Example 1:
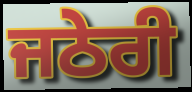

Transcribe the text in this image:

ਜਠੇਰੀ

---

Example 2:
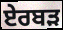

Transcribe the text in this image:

ਏਰਬੜ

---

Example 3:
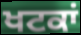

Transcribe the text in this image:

ਖਟਕਾਂ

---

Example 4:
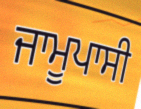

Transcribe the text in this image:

ਜਾਮੂਪਾਸੀ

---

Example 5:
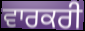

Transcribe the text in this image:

ਵਾਰਕਰੀ